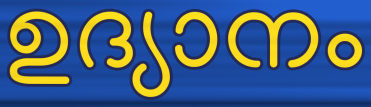
ഉദ്യാനം